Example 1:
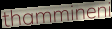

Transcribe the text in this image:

thammineni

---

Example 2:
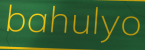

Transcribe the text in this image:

bahulyo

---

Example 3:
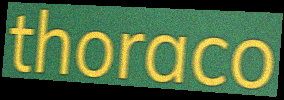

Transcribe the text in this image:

thoraco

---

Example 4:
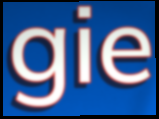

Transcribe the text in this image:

gie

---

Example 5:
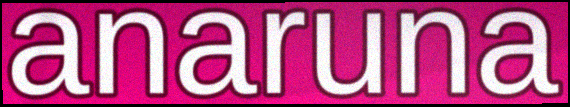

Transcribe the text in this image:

anaruna